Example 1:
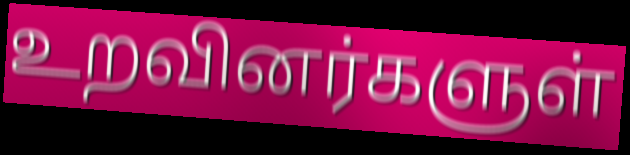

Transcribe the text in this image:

உறவினர்களுள்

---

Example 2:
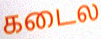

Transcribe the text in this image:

கடைல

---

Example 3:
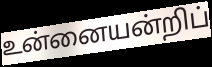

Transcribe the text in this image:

உன்னையன்றிப்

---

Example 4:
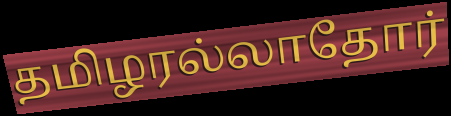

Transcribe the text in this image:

தமிழரல்லாதோர்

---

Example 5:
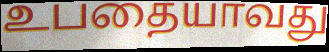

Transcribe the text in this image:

உபதையாவது